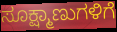
ಸೂಕ್ಷ್ಮಾಣುಗಳಿಗೆ